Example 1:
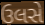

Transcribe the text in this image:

ઉલસે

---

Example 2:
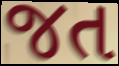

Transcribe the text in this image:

જત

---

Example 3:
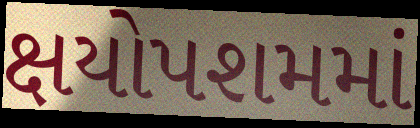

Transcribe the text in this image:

ક્ષયોપશમમાં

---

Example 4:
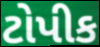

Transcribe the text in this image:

ટોપીક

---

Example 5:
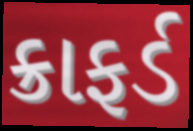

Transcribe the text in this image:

ક્રાફર્ડ